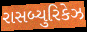
રાસબ્યુરિકેઝ